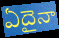
ఏదైనా